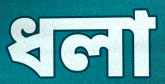
ধলা